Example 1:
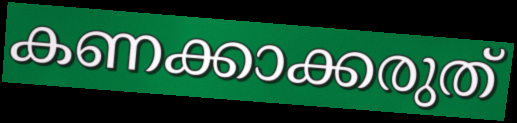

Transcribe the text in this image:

കണക്കാക്കരുത്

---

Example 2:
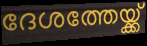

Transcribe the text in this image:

ദേശത്തേയ്ക്ക്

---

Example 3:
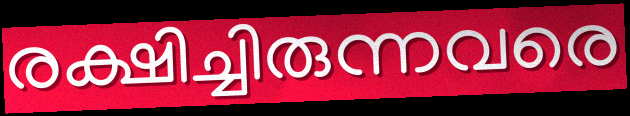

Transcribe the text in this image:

രക്ഷിച്ചിരുന്നവരെ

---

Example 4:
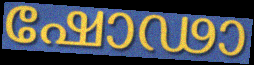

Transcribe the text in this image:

ഷോഢാ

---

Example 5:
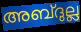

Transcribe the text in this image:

അബ്ദുല്ല